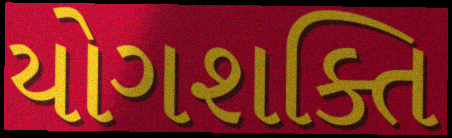
યોગશક્તિ